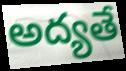
అద్యతే